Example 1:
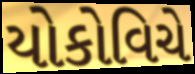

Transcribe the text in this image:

યોકોવિચે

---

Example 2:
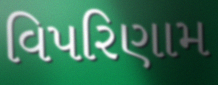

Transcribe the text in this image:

વિપરિણામ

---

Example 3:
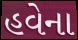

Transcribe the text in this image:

હવેના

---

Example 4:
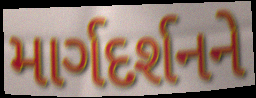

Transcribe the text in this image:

માર્ગદર્શનને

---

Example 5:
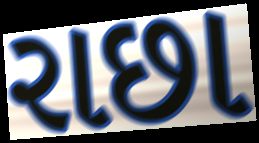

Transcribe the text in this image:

રાછા